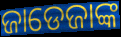
ଜାଡେଜାଙ୍କ